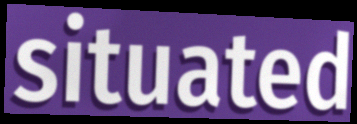
situated